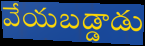
వేయబడ్డాడు